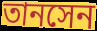
তানসেন